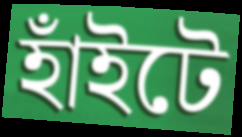
হাঁইটে